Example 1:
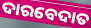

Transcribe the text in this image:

ଦାରବେଦାତ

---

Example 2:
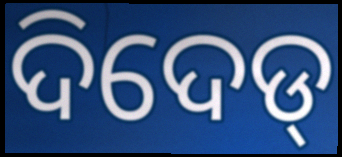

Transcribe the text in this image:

ଦିଦେଡ୍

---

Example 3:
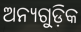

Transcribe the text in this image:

ଅନ୍ୟଗୁଡ଼ିକ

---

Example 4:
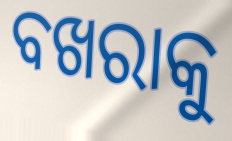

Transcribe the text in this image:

ବଖରାକୁ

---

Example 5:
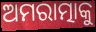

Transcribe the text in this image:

ଅମରାତ୍ମାକୁ